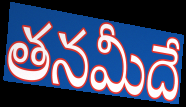
తనమీదే